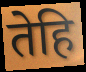
तेहि